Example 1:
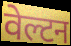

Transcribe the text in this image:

वेल्टन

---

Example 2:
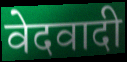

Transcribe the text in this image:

वेदवादी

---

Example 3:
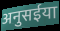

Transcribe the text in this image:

अनुसईया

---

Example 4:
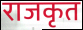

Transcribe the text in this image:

राजकृत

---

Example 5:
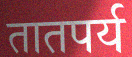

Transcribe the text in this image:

तातपर्य